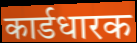
कार्डधारक